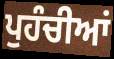
ਪੁਹੰਚੀਆਂ